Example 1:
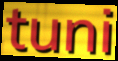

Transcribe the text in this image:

tuni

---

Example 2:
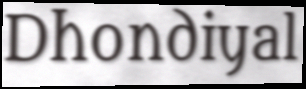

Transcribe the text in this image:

Dhondiyal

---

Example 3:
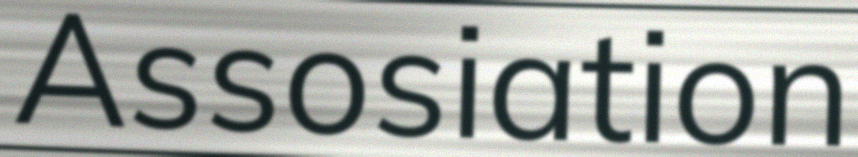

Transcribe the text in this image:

Assosiation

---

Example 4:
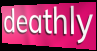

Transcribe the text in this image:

deathly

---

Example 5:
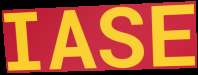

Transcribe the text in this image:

IASE